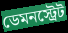
ডেমনস্ট্রেট